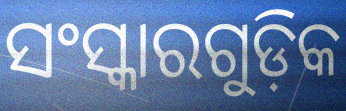
ସଂସ୍କାରଗୁଡ଼ିକ